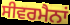
ਸੀਵਰਮੈਨਾਂ